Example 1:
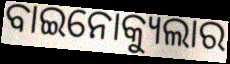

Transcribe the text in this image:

ବାଇନୋକ୍ୟୁଲାର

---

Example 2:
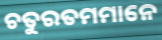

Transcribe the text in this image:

ଚତୁରତମମାନେ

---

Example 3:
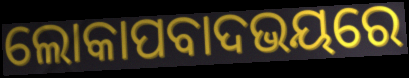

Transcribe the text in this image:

ଲୋକାପବାଦଭୟରେ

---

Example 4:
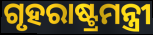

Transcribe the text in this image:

ଗୃହରାଷ୍ଟ୍ରମନ୍ତ୍ରୀ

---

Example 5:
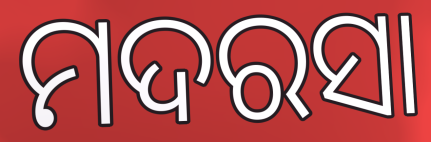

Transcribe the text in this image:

ମଦରସା